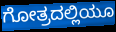
ಗೋತ್ರದಲ್ಲಿಯೂ